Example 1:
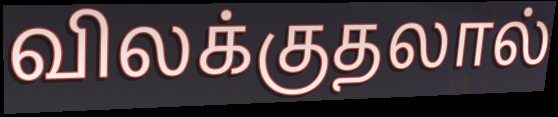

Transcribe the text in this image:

விலக்குதலால்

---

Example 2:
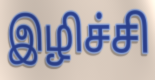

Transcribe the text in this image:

இழிச்சி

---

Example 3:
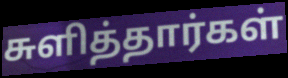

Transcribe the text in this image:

சுளித்தார்கள்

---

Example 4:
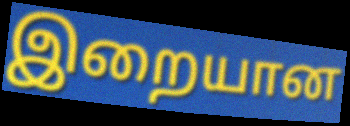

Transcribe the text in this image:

இறையான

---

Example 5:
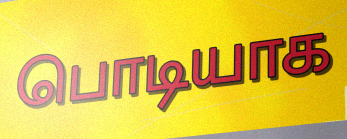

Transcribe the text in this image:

பொடியாக